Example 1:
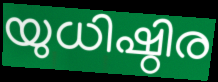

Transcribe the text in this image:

യുധിഷ്ഠിര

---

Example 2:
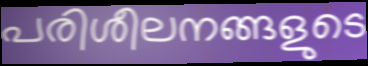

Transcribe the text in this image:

പരിശീലനങ്ങളുടെ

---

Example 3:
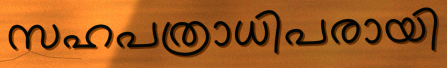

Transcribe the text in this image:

സഹപത്രാധിപരായി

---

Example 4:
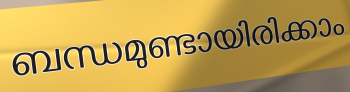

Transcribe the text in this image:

ബന്ധമുണ്ടായിരിക്കാം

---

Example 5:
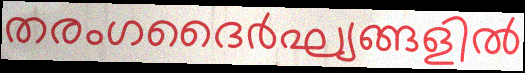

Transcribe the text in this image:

തരംഗദൈർഘ്യങ്ങളിൽ